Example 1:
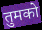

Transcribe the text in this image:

तुमको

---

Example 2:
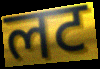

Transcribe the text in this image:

लट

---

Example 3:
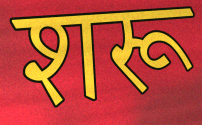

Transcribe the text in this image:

शरू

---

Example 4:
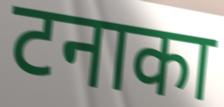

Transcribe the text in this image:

टनाका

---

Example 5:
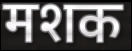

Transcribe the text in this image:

मशक